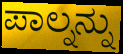
ಪಾಲ್ನನ್ನು